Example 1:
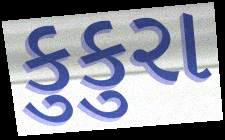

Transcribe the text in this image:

કુકુરા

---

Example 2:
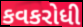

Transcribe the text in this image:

કવકરોધી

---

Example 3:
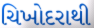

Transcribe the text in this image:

ચિખોદરાથી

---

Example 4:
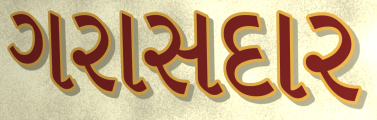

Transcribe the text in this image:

ગરાસદાર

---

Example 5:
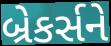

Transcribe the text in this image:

બ્રેકર્સને